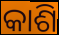
କାଶି